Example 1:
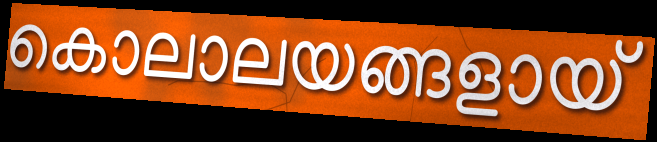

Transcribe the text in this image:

കൊലാലയങ്ങളായ്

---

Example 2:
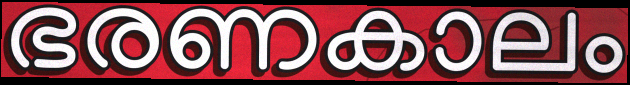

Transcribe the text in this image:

ഭരണകാലം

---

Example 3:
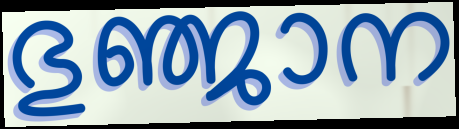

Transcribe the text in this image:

ഭുഞ്ജാന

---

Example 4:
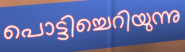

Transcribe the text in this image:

പൊട്ടിച്ചെറിയുന്നു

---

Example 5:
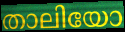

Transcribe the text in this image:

താലിയോ